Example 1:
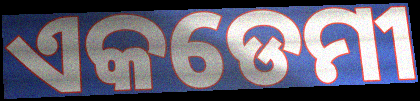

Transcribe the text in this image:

ଏକଡେମୀ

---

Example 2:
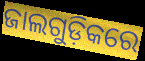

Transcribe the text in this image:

ଜାଲଗୁଡ଼ିକରେ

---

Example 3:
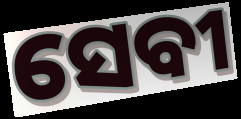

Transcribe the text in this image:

ସେବୀ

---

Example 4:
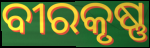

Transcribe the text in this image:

ବୀରକୃଷ୍ଣ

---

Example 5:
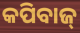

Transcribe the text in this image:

କପିବାଜ୍